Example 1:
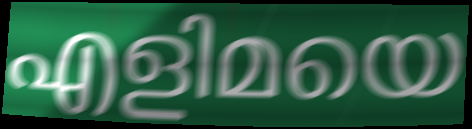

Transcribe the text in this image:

എളിമയെ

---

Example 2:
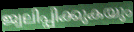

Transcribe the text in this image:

ജ്വലിപ്പിക്കുകയും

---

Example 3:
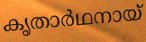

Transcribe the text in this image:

കൃതാർഥനായ്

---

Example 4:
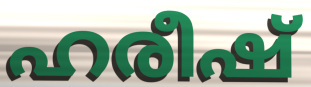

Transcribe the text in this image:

ഹരീഷ്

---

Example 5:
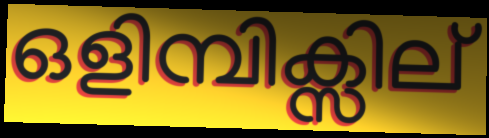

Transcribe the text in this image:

ഒളിമ്പിക്സില്